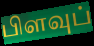
பிளவுப்